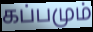
கப்பமும்